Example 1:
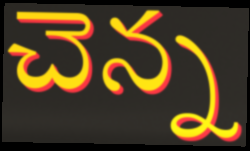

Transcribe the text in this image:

చెన్న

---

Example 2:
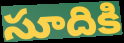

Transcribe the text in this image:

సూదికి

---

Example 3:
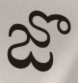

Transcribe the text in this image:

జొ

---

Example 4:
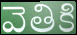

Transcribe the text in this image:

వెతికి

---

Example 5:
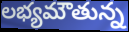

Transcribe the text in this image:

లభ్యమౌతున్న